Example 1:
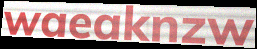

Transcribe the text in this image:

waeaknzw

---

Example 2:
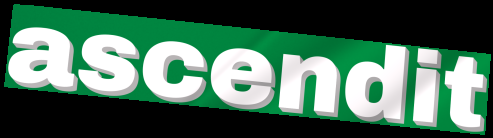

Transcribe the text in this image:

ascendit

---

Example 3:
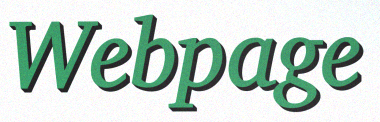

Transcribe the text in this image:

Webpage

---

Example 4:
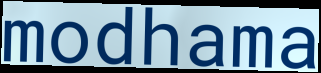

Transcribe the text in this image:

modhama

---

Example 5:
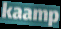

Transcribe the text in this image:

kaamp